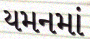
યમનમાં